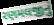
રણમલજીનું